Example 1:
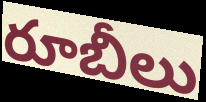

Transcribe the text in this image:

రూబీలు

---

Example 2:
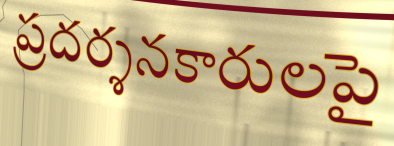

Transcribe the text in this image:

ప్రదర్శనకారులపై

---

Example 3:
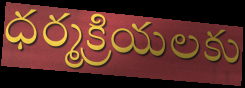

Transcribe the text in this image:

ధర్మక్రియలకు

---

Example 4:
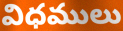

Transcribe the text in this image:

విధములు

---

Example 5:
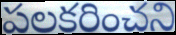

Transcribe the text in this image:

పలకరించని